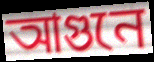
আগুনে